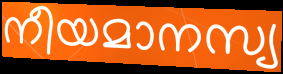
നീയമാനസ്യ